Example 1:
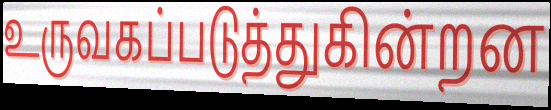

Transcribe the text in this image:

உருவகப்படுத்துகின்றன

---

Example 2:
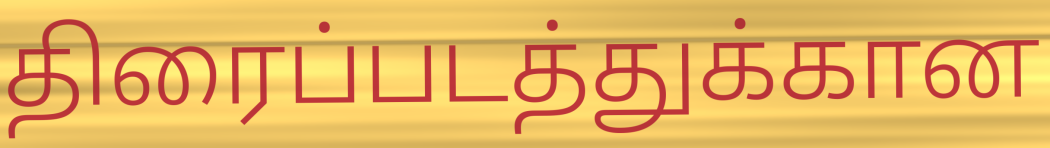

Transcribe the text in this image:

திரைப்படத்துக்கான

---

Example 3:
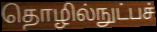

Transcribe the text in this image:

தொழில்நுட்பச்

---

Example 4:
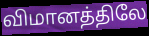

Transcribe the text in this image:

விமானத்திலே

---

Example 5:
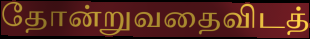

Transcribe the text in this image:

தோன்றுவதைவிடத்